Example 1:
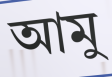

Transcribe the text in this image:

আমু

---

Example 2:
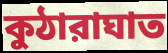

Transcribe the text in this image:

কুঠারাঘাত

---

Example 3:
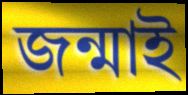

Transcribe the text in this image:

জন্মাই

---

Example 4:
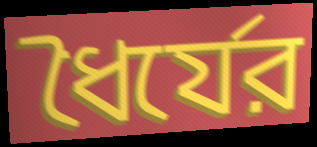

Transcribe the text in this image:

ধৈর্যের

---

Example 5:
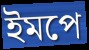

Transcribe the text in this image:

ইমপে